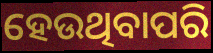
ହେଉଥିବାପରି